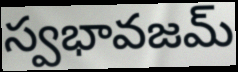
స్వభావజమ్